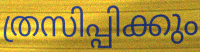
ത്രസിപ്പിക്കും